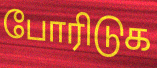
போரிடுக